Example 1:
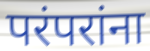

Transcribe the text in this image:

परंपरांना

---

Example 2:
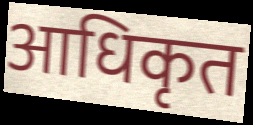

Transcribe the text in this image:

आधिकृत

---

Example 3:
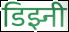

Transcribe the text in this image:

डिझ्नी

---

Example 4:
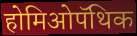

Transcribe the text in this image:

होमिओपॅथिक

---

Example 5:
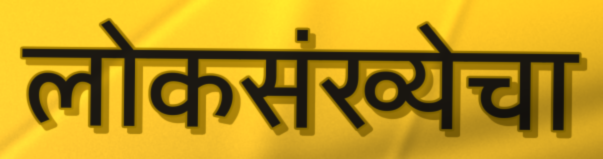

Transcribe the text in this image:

लोकसंख्येचा